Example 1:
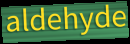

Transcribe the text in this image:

aldehyde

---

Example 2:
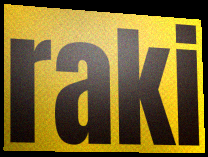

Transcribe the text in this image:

raki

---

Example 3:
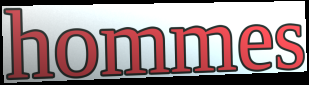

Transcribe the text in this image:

hommes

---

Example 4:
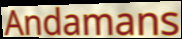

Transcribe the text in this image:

Andamans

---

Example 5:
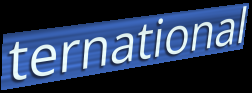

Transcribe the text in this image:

ternational